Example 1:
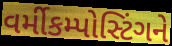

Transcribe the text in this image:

વર્મીકમ્પોસ્ટિંગને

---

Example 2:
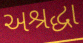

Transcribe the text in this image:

અશ્રદ્ધા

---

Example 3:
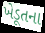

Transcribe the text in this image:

ખેડૂતના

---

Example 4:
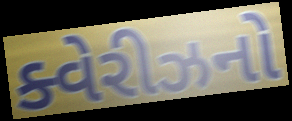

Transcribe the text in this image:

ક્વેરીઝનો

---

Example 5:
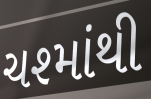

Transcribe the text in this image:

ચશ્માંથી